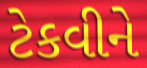
ટેકવીને